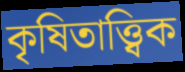
কৃষিতাত্ত্বিক